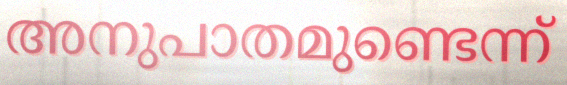
അനുപാതമുണ്ടെന്ന്